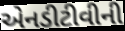
એનડીટીવીની